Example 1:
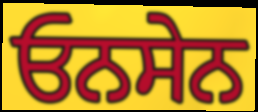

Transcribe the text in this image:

ਓਨਸੇਨ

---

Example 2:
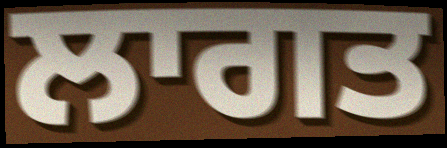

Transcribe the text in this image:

ਲਾਗਤ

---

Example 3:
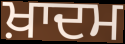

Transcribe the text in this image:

ਖ਼ਾਦਮ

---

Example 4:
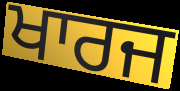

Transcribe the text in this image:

ਖਾਰਜ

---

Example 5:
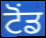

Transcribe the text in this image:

ਟੋਂਡ